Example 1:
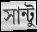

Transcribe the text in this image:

সান্টু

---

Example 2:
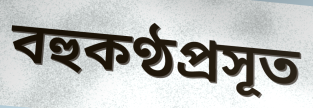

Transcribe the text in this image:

বহুকণ্ঠপ্রসূত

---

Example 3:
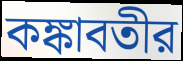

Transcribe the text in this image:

কঙ্কাবতীর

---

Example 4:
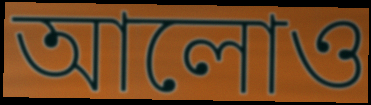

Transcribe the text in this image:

আলোও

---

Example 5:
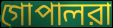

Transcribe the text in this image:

গোপালরা